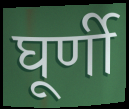
घूर्णी